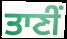
ਤਾਣੀਂ